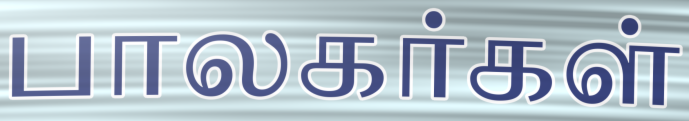
பாலகர்கள்